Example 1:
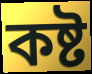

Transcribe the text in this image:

কষ্ট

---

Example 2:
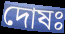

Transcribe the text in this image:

দোষঃ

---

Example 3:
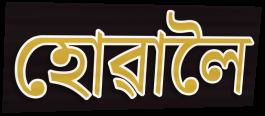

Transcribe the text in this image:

হোৱালৈ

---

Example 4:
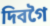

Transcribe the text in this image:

দিবগৈ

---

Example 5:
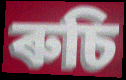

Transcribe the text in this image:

ৰুচি